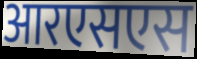
आरएसएस